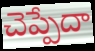
చెప్పేదా